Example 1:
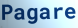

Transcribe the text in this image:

Pagare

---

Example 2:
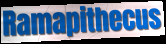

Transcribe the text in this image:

Ramapithecus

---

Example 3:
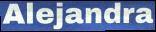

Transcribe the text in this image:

Alejandra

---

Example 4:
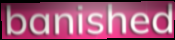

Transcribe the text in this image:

banished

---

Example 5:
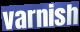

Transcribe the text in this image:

varnish